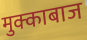
मुक्काबाज